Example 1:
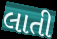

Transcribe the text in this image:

લાતી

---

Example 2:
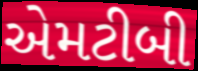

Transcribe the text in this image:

એમટીબી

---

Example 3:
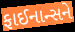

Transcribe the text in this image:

ફાઈનાન્સને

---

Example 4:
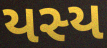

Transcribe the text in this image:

યસ્ય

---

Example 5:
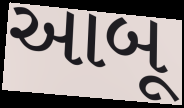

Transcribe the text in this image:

આબૂ